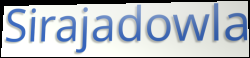
Sirajadowla